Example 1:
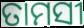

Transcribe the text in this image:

ତାମସୀ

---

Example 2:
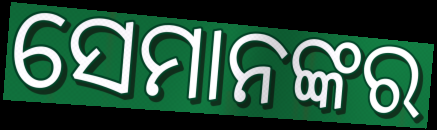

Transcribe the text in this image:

ସେମାନଙ୍କର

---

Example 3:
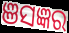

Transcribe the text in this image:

ଞସଜ୍ଞର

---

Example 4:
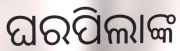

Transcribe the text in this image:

ଘରପିଲାଙ୍କ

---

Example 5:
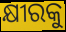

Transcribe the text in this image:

କ୍ଷୀରକୁ